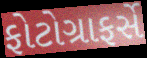
ફોટોગ્રાફર્સે